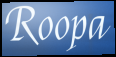
Roopa